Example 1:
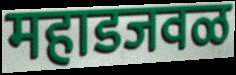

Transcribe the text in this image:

महाडजवळ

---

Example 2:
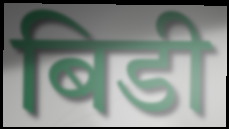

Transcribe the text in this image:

बिडी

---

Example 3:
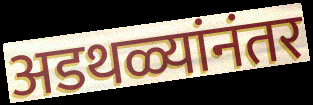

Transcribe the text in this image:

अडथळ्यांनंतर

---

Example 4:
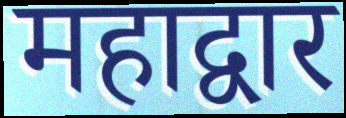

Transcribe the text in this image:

महाद्वार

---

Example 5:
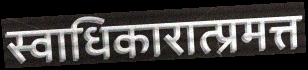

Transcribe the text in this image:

स्वाधिकारात्प्रमत्त